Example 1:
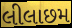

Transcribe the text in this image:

લીલાછમ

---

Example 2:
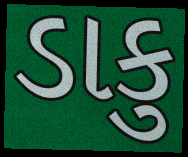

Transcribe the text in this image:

ડાકુ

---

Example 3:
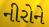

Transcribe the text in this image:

નીરોને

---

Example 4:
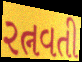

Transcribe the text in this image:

રત્નવતી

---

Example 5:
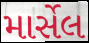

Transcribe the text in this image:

માર્સેલ